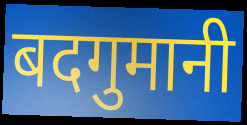
बदगुमानी